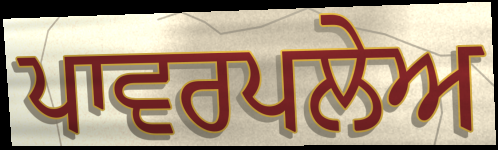
ਪਾਵਰਪਲੇਅ